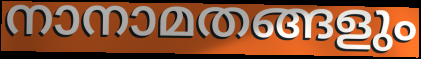
നാനാമതങ്ങളും